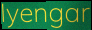
Iyengar